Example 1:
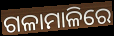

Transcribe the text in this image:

ଗଳାମାଳିରେ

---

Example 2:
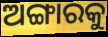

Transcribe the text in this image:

ଅଙ୍ଗାରକୁ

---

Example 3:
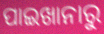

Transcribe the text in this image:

ପାଇଖାନାରୁ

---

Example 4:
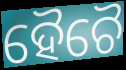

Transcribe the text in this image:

ହୈଚୈ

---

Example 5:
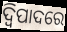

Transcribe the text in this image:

ଦ୍ୱିପାଦରେ